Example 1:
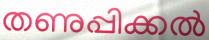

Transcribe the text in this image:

തണുപ്പിക്കൽ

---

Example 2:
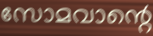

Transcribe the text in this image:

സോമവാന്റെ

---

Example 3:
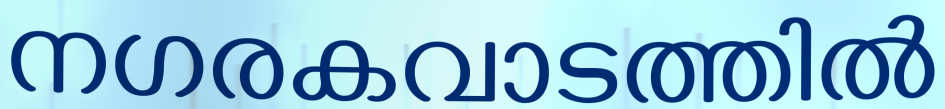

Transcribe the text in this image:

നഗരകവാടത്തിൽ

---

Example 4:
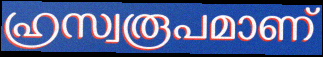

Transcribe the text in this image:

ഹ്രസ്വരൂപമാണ്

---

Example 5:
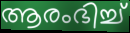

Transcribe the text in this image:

ആരംഭിച്ച്